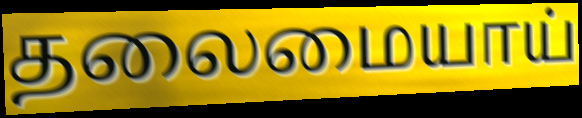
தலைமையாய்